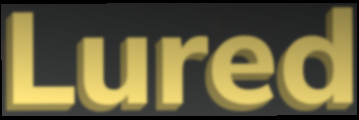
Lured